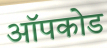
ऑपकोड